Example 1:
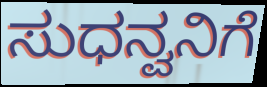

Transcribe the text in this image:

ಸುಧನ್ವನಿಗೆ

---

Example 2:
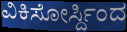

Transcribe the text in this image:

ವಿಕಿಸೋರ್ಸ್ದಿಂದ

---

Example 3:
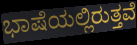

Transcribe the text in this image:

ಭಾಷೆಯಲ್ಲಿರುತ್ತವೆ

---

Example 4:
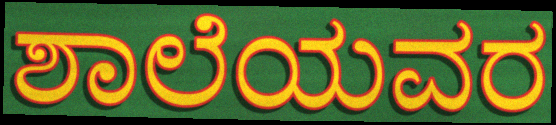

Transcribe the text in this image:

ಶಾಲೆಯವರ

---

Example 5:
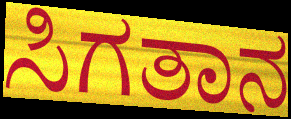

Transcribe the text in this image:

ಸಿಗತಾನ